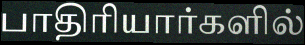
பாதிரியார்களில்